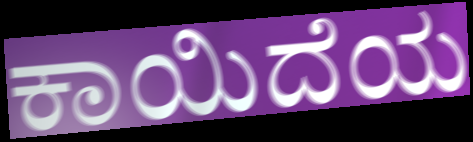
ಕಾಯಿದೆಯ